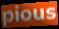
pious